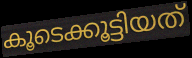
കൂടെക്കൂട്ടിയത്